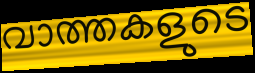
വാത്തകളുടെ